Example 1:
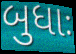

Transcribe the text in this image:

બુધાઃ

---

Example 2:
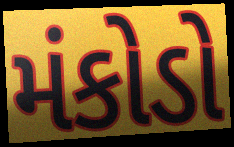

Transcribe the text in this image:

મંકોડો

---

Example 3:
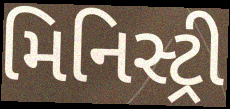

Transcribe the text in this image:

મિનિસ્ટ્રી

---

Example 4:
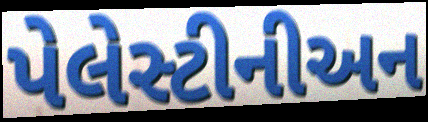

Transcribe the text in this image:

પેલેસ્ટીનીઅન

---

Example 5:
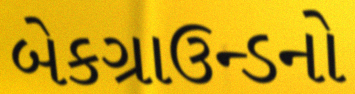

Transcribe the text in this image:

બેકગ્રાઉન્ડનો